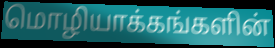
மொழியாக்கங்களின்